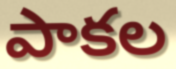
పాకల